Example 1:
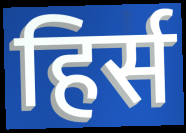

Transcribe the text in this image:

हिर्स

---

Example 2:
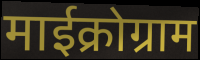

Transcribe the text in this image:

माईक्रोग्राम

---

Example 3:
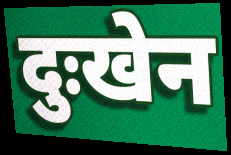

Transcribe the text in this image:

दुःखेन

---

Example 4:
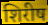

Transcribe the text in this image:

शिरीष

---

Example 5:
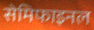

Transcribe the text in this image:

सेमिफाइनल